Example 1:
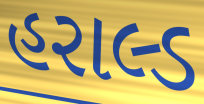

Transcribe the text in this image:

હરાલ્ડ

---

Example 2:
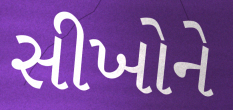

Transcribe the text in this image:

સીખોને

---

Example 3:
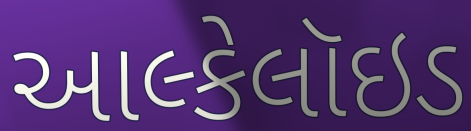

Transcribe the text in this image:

આલ્કેલૉઇડ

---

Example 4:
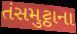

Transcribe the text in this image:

તંસમુટ્ઠાના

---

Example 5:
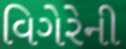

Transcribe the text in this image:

વિગેરેની